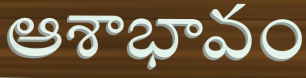
ఆశాభావం